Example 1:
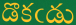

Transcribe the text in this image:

డొకఁడు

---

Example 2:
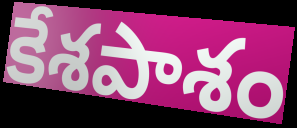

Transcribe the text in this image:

కేశపాశం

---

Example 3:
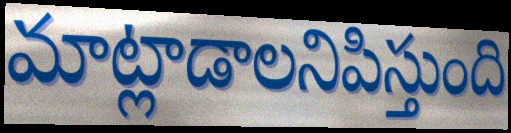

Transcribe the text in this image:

మాట్లాడాలనిపిస్తుంది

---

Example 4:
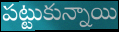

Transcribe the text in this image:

పట్టుకున్నాయి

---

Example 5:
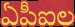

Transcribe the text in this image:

ఏపీఐల